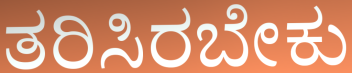
ತರಿಸಿರಬೇಕು